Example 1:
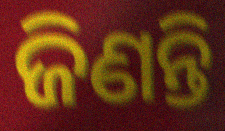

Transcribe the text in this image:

ଜିଣନ୍ତି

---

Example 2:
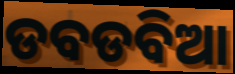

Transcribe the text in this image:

ଡବଡବିଆ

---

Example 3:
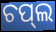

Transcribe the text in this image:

ଚପ୍‌ଲ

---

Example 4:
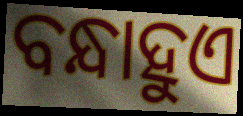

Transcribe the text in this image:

ବନ୍ଧାହୁଏ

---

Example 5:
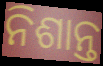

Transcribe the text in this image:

ନିଶାନ୍ତ